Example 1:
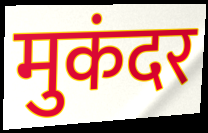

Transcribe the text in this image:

मुकंदर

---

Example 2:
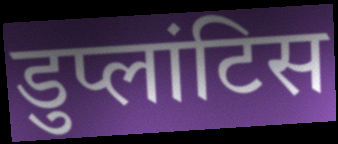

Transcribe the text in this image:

डुप्लांटिस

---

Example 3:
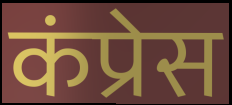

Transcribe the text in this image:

कंप्रेस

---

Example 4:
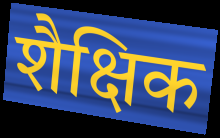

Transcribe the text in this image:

शैक्षिक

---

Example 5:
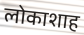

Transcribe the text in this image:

लोकाशाह